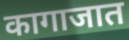
कागाजात